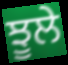
ਝੂਲੇ